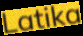
Latika